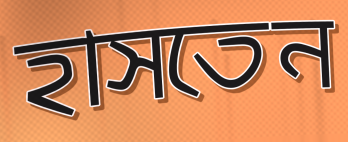
হাসতেন